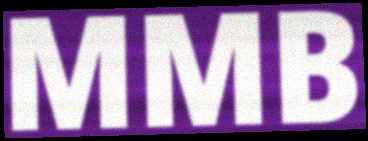
MMB